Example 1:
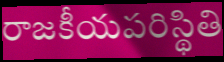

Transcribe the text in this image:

రాజకీయపరిస్థితి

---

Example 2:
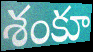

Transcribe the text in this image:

శంకూ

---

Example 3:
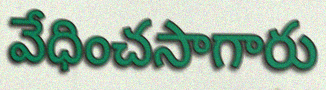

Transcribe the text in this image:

వేధించసాగారు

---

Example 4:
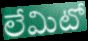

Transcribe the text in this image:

లేమిటో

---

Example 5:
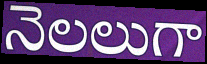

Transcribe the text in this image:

నెలలుగా